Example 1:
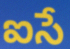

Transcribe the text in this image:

ఐసే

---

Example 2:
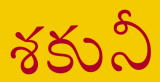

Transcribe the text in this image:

శకునీ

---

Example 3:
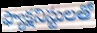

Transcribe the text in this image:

ఫ్యాక్షనిస్టులతో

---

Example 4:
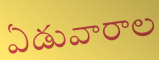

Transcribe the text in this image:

ఏడువారాల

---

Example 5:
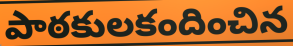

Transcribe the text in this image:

పాఠకులకందించిన